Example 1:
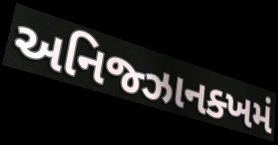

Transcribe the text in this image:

અનિજ્ઝાનક્ખમં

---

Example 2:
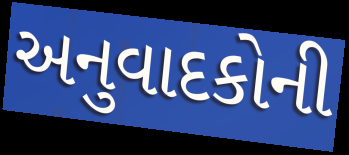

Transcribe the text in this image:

અનુવાદકોની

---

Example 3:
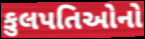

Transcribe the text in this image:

કુલપતિઓનો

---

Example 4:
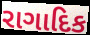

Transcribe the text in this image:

રાગાદિક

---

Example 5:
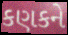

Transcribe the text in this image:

કણકને